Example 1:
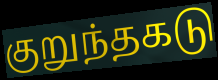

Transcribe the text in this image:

குறுந்தகடு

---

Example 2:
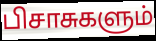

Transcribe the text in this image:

பிசாசுகளும்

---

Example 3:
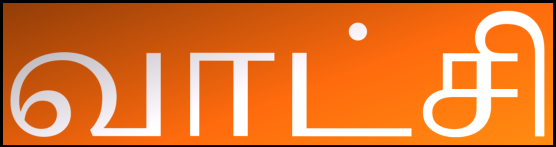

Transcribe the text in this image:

வாட்சி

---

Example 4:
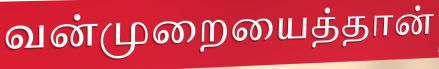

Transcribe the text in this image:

வன்முறையைத்தான்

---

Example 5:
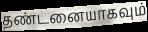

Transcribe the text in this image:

தண்டனையாகவும்